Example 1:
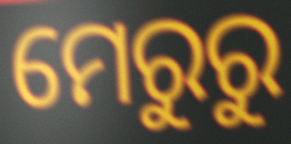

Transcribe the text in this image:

ମେରୁରୁ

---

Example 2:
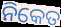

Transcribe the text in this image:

ନିକେତ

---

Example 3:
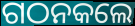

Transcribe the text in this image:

ଗଠନକଲେ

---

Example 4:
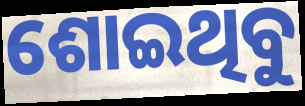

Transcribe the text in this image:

ଶୋଇଥିବୁ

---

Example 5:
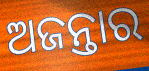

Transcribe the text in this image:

ଅଜନ୍ତାର